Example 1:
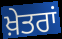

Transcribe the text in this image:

ਖ਼ੇਤਰਾਂ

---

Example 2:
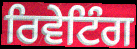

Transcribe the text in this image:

ਰਿਵੇਟਿੰਗ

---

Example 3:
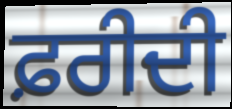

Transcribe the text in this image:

ਫ਼ਰੀਦੀ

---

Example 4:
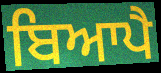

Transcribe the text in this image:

ਬਿਆਪੈ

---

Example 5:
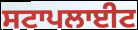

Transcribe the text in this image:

ਸਟਾਪਲਾਈਟ